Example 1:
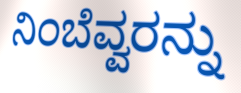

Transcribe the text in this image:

ನಿಂಬೆವ್ವರನ್ನು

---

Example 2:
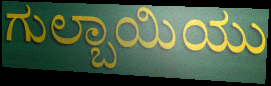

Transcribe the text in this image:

ಗುಲ್ಬಾಯಿಯು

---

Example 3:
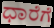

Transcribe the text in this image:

ಧಾರೆಗೆ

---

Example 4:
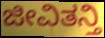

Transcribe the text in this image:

ಜೀವಿತನ್ತಿ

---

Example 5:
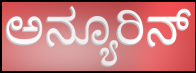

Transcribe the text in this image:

ಅನ್ಯೂರಿನ್